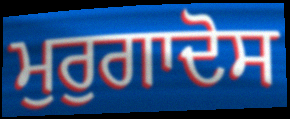
ਮੁਰੁਗਾਦੋਸ